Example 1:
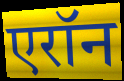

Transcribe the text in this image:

एरॉन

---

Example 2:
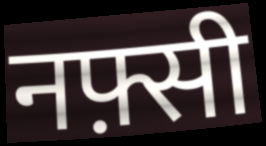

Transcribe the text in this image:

नफ़्सी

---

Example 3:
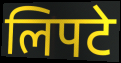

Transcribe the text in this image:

लिपटे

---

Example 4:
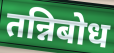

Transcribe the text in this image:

तन्निबोध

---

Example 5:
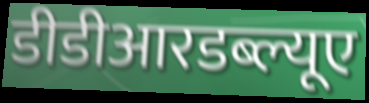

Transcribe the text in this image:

डीडीआरडब्ल्यूए